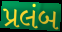
પ્રલંબ